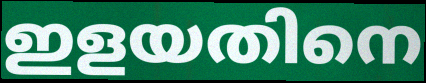
ഇളയതിനെ